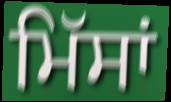
ਮਿੱਸਾਂ